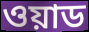
ওয়াড